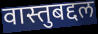
वास्तुबद्दल